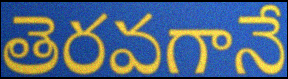
తెరవగానే